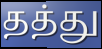
தத்து